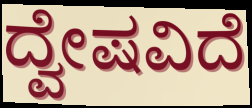
ದ್ವೇಷವಿದೆ